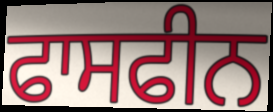
ਫਾਸਫੀਨ